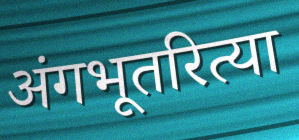
अंगभूतरित्या